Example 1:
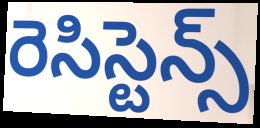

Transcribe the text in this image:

రెసిస్టెన్స్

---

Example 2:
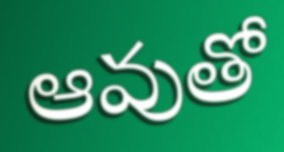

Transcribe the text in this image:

ఆవుతో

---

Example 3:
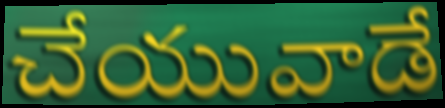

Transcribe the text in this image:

చేయువాడే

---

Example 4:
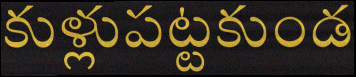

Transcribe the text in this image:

కుళ్లుపట్టకుండ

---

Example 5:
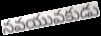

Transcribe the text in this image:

నవయువకుడు